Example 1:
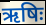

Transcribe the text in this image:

ऋषिः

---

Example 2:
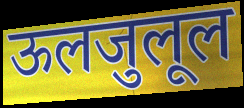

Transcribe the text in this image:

ऊलजुलूल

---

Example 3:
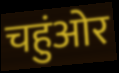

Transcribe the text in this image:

चहुंओर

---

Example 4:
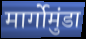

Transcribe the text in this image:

मार्गोमुंडा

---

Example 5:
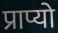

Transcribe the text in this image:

प्राप्यो